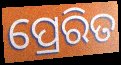
ପ୍ରେରିତ